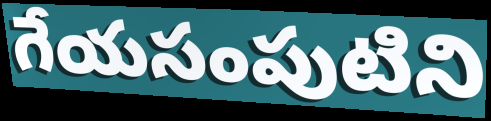
గేయసంపుటిని